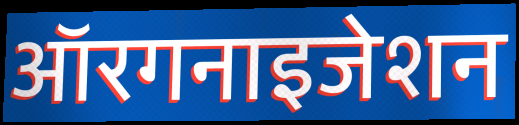
ऑरगनाइजेशन